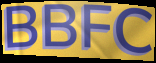
BBFC